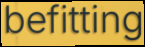
befitting